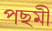
পছমী